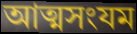
আত্মসংযম